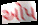
ઓપ